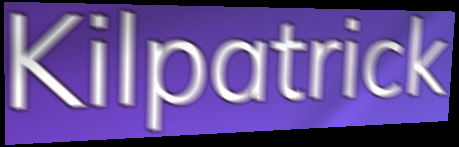
Kilpatrick